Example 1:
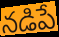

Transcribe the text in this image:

నడిపే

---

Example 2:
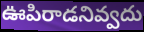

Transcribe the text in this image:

ఊపిరాడనివ్వదు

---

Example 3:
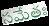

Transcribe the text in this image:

సమేతః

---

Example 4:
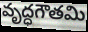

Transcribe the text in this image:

వృద్ధగౌతమి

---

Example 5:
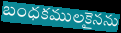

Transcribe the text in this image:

బంధకములకైనను